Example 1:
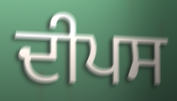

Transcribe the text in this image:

ਦੀਪਸ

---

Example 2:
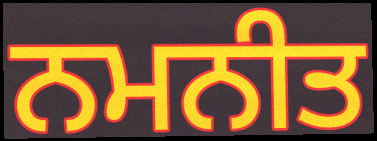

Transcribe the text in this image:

ਨਮਨੀਤ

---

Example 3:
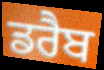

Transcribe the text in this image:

ਡਰੈਬ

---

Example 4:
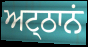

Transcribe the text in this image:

ਅਟ੍ਠਾਨਂ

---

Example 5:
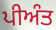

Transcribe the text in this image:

ਪੀਅੰਤ